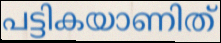
പട്ടികയാണിത്